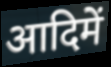
आदिमें